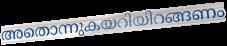
അതൊന്നുകയറിയിറങ്ങണം